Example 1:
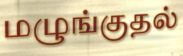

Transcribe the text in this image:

மழுங்குதல்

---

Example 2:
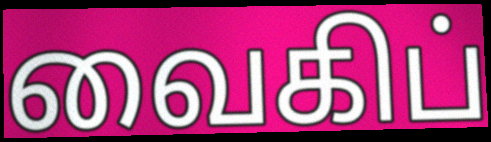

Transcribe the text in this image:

வைகிப்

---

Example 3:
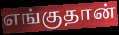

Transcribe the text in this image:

எங்குதான்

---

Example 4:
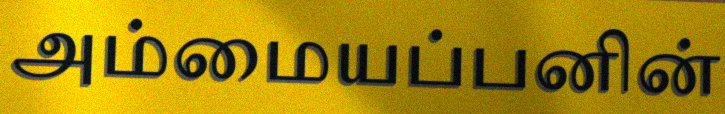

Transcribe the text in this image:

அம்மையப்பனின்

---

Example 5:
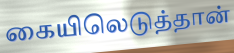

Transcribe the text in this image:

கையிலெடுத்தான்